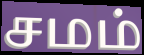
சமம்